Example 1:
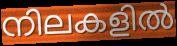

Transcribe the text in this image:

നിലകളിൽ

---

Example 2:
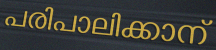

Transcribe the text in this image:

പരിപാലിക്കാന്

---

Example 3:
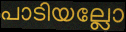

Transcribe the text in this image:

പാടിയല്ലോ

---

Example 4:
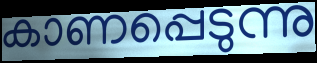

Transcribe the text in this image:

കാണപ്പെടുന്നു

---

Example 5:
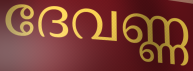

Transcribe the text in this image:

ദേവണ്ണ